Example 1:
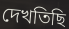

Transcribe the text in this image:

দেখতিছি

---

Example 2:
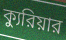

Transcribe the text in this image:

ক্যুরিয়ার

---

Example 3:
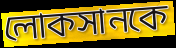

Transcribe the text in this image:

লোকসানকে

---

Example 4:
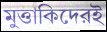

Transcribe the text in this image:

মুত্তাকিদেরই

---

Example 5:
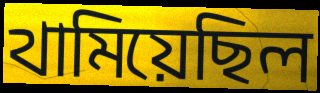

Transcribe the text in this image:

থামিয়েছিল